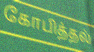
கோபித்தல்